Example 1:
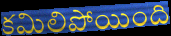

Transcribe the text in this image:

కమిలిపోయింది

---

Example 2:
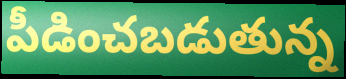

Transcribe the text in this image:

పీడించబడుతున్న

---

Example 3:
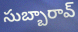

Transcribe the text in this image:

సుబ్బారావ్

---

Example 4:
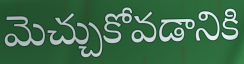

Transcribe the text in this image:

మెచ్చుకోవడానికి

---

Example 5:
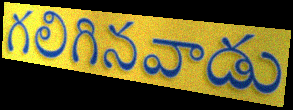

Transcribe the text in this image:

గలిగినవాడు